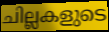
ചില്ലകളുടെ